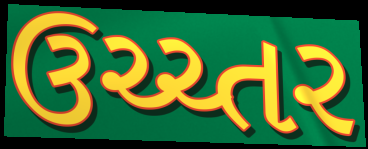
ઉચ્ચ્તર